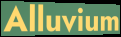
Alluvium